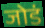
जोडं